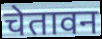
चेतावन